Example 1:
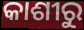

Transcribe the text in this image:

କାଶୀରୁ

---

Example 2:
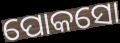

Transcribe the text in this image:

ପୋକସୋ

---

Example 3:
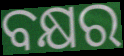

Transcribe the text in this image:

ବକ୍ଷର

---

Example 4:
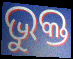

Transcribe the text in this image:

ଭୁକ୍ତ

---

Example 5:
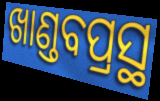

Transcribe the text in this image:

ଖାଣ୍ଡବପ୍ରସ୍ଥ